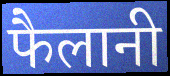
फैलानी